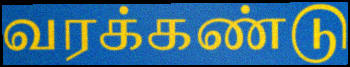
வரக்கண்டு